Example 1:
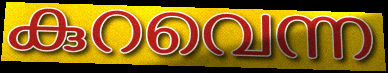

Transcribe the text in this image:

കുറവെന്ന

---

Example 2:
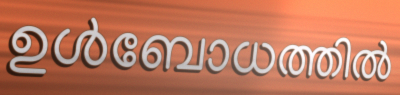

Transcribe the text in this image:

ഉൾബോധത്തിൽ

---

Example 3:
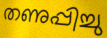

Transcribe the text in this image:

തണുപ്പിച്ചു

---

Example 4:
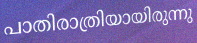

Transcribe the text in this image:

പാതിരാത്രിയായിരുന്നു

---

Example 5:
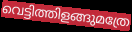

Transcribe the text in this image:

വെട്ടിത്തിളങ്ങുമത്രേ